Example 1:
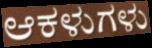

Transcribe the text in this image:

ಆಕಳುಗಳು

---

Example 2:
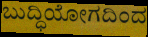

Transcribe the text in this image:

ಬುದ್ಧಿಯೋಗದಿಂದ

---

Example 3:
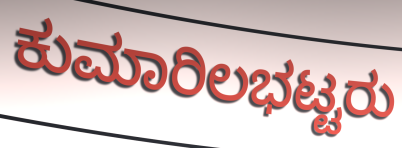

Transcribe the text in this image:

ಕುಮಾರಿಲಭಟ್ಟರು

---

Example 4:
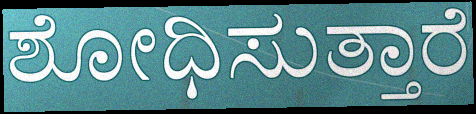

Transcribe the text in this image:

ಶೋಧಿಸುತ್ತಾರೆ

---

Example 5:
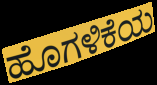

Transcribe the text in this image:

ಹೊಗಳಿಕೆಯ